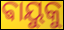
ଵାୟୁକୁ